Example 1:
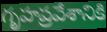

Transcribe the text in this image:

గృహప్రవేశానికి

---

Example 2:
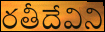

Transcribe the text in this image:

రతీదేవిని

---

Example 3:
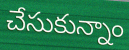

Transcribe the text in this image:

చేసుకున్నాం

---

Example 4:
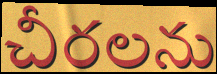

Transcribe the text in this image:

చీరలను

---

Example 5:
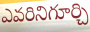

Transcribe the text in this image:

ఎవరినిగూర్చి